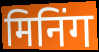
मिनिंग